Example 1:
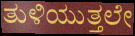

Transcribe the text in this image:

ತುಳಿಯುತ್ತಲೇ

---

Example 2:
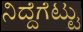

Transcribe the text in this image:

ನಿದ್ದೆಗೆಟ್ಟು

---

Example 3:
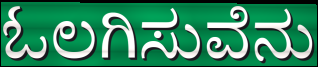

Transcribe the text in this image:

ಓಲಗಿಸುವೆನು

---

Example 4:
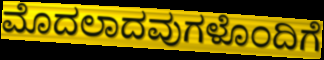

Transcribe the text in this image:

ಮೊದಲಾದವುಗಳೊಂದಿಗೆ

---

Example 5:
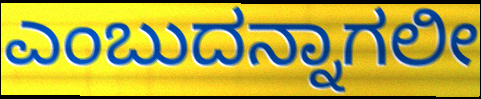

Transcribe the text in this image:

ಎಂಬುದನ್ನಾಗಲೀ